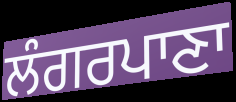
ਲੰਗਰਪਾਣਾ